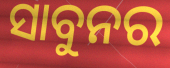
ସାବୁନର